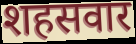
शहसवार